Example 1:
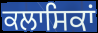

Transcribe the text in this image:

ਕਲਾਸਿਕਾਂ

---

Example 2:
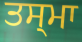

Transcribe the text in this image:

ਤਸ੍ਮਾ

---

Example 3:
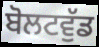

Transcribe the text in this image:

ਬੋਲਟਵੁੱਡ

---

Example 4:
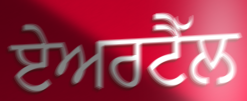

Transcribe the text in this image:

ਏਅਰਟੈੱਲ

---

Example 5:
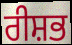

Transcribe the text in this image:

ਰੀਸ਼ਭ